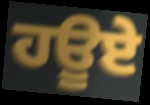
ਹਊਏ